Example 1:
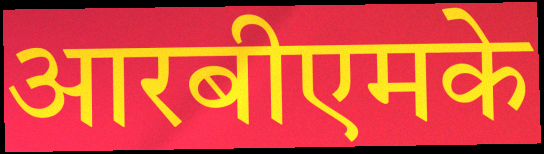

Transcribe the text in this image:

आरबीएमके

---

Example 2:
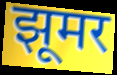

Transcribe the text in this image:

झूमर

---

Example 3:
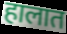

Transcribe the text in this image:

हालात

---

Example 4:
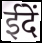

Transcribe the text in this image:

ईदें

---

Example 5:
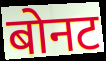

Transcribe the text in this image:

बोनट